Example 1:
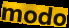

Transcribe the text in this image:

modo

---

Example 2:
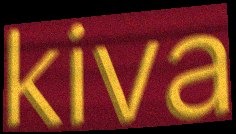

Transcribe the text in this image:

kiva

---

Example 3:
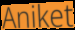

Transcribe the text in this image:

Aniket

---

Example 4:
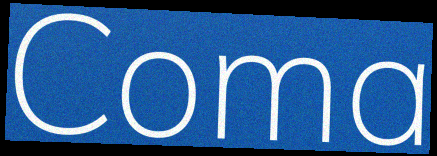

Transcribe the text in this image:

Coma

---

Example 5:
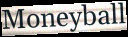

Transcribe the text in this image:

Moneyball